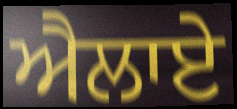
ਐਲਾਏ